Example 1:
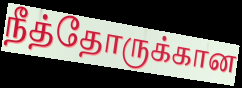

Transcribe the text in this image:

நீத்தோருக்கான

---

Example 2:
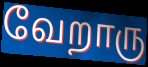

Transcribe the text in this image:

வேறாரு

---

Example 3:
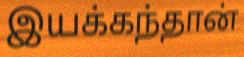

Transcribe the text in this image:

இயக்கந்தான்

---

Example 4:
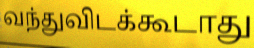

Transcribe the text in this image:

வந்துவிடக்கூடாது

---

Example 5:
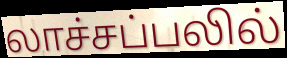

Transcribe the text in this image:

லாச்சப்பலில்